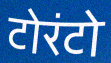
टोरंटो